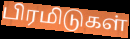
பிரமிடுகள்